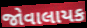
જોવાલાયક